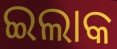
ଇଲାକ